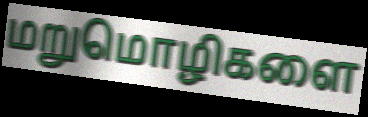
மறுமொழிகளை